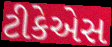
ટીકેએસ